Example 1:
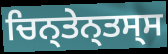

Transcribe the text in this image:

ਚਿਨ੍ਤੇਨ੍ਤਸ੍ਸ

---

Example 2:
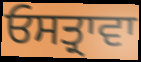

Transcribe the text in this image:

ਓਸਤ੍ਰਾਵਾ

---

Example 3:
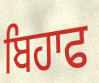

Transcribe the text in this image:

ਬਿਹਾਫ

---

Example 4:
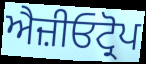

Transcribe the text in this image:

ਐਜ਼ੀਓਟ੍ਰੋਪ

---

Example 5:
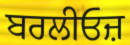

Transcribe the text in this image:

ਬਰਲੀਓਜ਼